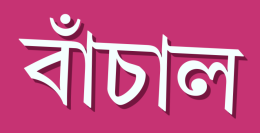
বাঁচাল